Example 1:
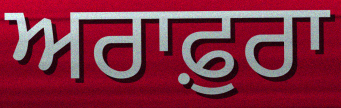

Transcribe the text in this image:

ਅਰਾਫ਼ੁਰਾ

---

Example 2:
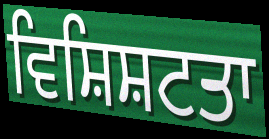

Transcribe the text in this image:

ਵਿਸ਼ਿਸ਼ਟਤਾ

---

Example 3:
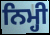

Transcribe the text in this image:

ਨਿਮ੍ਹੀ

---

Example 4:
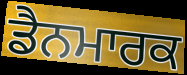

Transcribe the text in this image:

ਡੈਨਮਾਰਕ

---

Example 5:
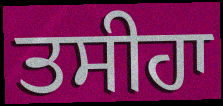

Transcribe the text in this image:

ਤਸੀਹਾ